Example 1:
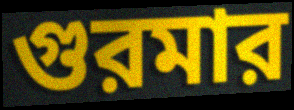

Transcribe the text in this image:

গুরমার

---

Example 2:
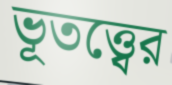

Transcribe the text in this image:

ভূতত্ত্বের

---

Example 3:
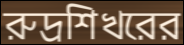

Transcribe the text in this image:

রুদ্রশিখরের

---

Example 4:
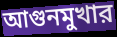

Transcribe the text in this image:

আগুনমুখার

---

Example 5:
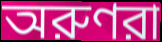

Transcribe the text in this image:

অরুণরা